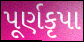
પૂર્ણકૃપા